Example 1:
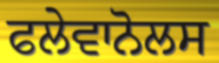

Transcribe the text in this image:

ਫਲੇਵਾਨੋਲਸ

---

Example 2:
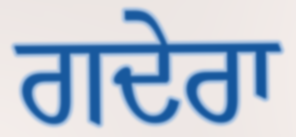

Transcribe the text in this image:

ਗਦੇਰਾ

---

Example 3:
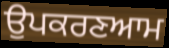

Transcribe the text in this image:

ਉਪਕਰਣਆਮ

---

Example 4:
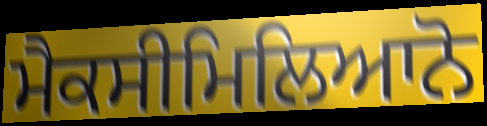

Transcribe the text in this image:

ਮੈਕਸੀਮਿਲਿਆਨੋ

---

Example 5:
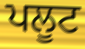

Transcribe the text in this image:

ਪਲੂਟ